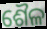
ଶୈଳ